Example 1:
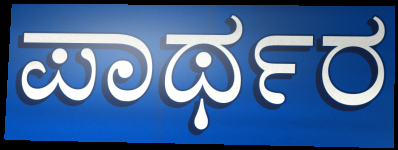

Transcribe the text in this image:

ಪಾರ್ಥರ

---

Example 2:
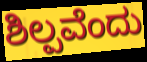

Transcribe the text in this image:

ಶಿಲ್ಪವೆಂದು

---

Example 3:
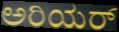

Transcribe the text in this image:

ಅರಿಯರ್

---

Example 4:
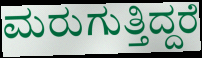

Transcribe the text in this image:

ಮರುಗುತ್ತಿದ್ದರೆ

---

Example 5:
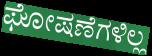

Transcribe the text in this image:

ಘೋಷಣೆಗಳಿಲ್ಲ